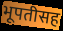
भूपतीसह